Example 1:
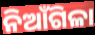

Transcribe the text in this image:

ନିଆଁଗିଳା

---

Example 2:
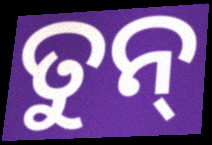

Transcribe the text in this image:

ତୁନ୍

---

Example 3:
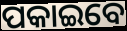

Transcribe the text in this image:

ପକାଇବେ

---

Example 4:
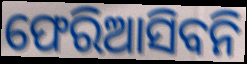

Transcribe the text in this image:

ଫେରିଆସିବନି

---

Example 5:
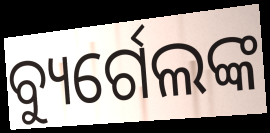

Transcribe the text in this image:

ବ୍ୟୁର୍ଗେଲଙ୍କ